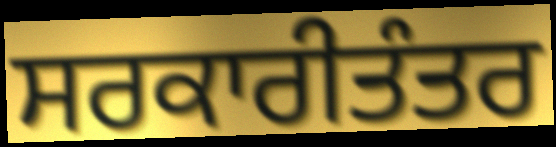
ਸਰਕਾਰੀਤੰਤਰ